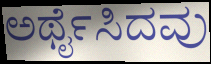
ಅರ್ಥೈಸಿದವು